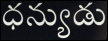
ధన్యుడు